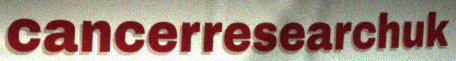
cancerresearchuk